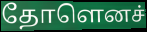
தோளெனச்